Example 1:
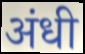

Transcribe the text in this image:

अंधी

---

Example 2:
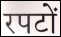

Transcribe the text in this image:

रपटों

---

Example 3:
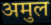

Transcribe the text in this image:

अमुल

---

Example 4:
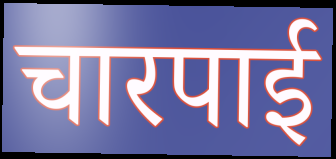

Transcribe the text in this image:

चारपाई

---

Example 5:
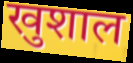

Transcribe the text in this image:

खुशाल